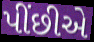
પીંછીએ